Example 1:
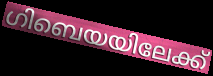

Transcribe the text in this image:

ഗിബെയയിലേക്ക്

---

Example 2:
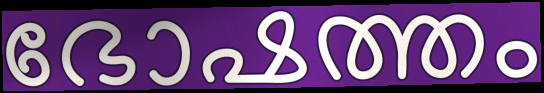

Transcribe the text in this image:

ഭോഷത്തം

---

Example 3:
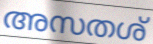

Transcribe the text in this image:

അസതശ്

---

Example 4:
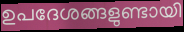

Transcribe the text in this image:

ഉപദേശങ്ങളുണ്ടായി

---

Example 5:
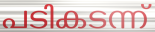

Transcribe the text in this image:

പടികടന്ന്